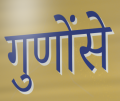
गुणोंसे